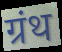
ग्रंथ